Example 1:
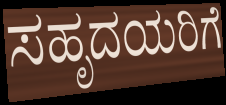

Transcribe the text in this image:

ಸಹೃದಯರಿಗೆ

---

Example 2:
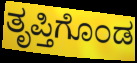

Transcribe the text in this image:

ತೃಪ್ತಿಗೊಂಡ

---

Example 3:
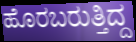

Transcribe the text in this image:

ಹೊರಬರುತ್ತಿದ್ದ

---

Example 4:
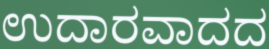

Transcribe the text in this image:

ಉದಾರವಾದದ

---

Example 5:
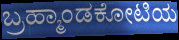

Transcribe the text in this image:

ಬ್ರಹ್ಮಾಂಡಕೋಟಿಯ